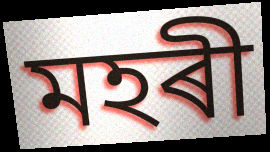
মহৰী